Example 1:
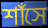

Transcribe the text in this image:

শাঁসে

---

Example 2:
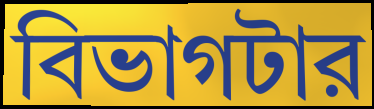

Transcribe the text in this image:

বিভাগটার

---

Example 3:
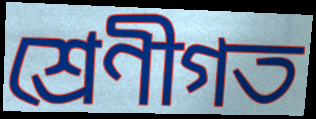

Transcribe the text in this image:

শ্রেণীগত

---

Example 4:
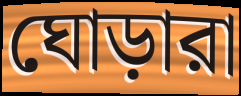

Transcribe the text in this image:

ঘোড়ারা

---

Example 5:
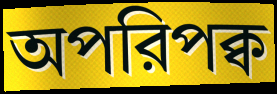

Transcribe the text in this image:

অপরিপক্ব